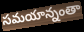
సమయాన్నంతా